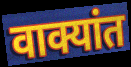
वाक्यांत